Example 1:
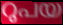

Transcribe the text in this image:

റുപയ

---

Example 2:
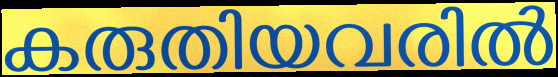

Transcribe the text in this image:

കരുതിയവരിൽ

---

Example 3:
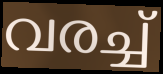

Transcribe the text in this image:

വരച്ച്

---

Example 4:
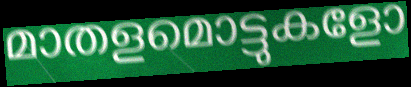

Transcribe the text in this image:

മാതളമൊട്ടുകളോ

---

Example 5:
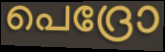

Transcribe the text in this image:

പെദ്രോ